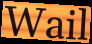
Wail